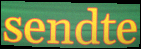
sendte